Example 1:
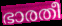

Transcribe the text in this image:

ഭാരതീ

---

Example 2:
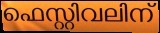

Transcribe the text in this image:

ഫെസ്റ്റിവലിന്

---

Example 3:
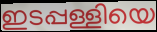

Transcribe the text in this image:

ഇടപ്പള്ളിയെ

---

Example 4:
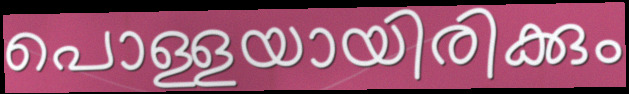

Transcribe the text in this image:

പൊള്ളയായിരിക്കും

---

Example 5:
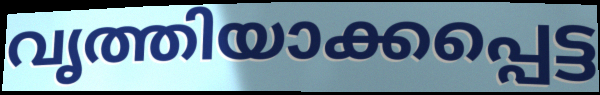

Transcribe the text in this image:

വൃത്തിയാക്കപ്പെട്ട